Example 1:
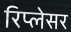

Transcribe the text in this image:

रिप्लेसर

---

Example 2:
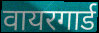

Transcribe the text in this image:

वायरगार्ड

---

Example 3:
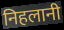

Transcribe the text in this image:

निहलानी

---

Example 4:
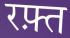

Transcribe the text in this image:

रफ़्त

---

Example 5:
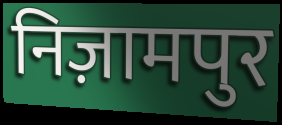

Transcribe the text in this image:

निज़ामपुर